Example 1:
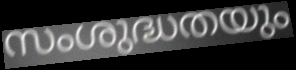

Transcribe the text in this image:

സംശുദ്ധതയും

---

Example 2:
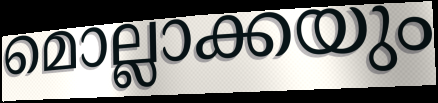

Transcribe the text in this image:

മൊല്ലാക്കയും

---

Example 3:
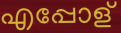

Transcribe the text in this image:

എപ്പോള്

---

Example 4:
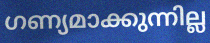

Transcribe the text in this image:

ഗണ്യമാക്കുന്നില്ല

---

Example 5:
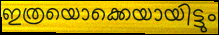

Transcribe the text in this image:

ഇത്രയൊക്കെയായിട്ടും